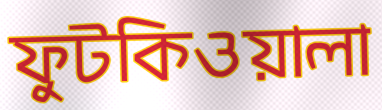
ফুটকিওয়ালা